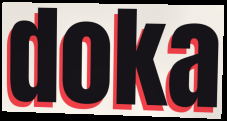
doka